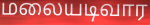
மலையடிவார